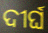
ଦୀର୍ଘ